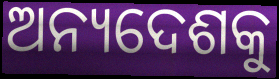
ଅନ୍ୟଦେଶକୁ